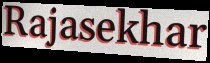
Rajasekhar